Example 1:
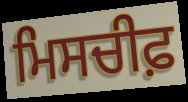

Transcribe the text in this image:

ਮਿਸਚੀਫ਼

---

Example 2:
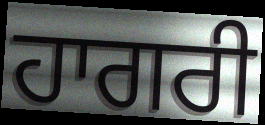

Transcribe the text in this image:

ਹਾਗਰੀ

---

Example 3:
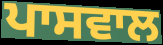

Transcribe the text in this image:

ਪਾਸਵਾਲ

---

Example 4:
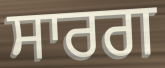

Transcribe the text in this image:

ਸਾਰਗ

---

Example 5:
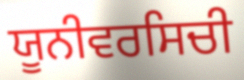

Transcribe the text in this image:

ਯੂਨੀਵਰਸਿਚੀ